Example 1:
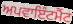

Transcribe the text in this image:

ਅਪਵਾਇੰਟਮੈਂਟ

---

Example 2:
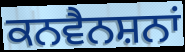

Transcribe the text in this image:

ਕਨਵੈਨਸ਼ਨਾਂ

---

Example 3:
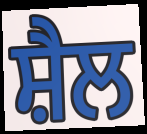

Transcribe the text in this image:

ਸ਼ੈਲ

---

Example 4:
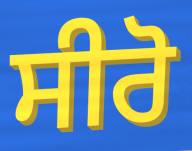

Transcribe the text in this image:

ਸੀਰੋ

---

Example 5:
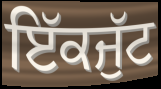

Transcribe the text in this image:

ਇੱਕਜੁੱਟ